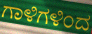
ಗಾಳಿಗಳಿಂದ